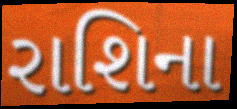
રાશિના